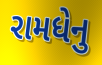
રામધેનુ